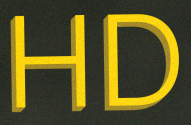
HD